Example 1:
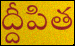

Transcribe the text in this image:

ద్దీపిత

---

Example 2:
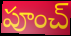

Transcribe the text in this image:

పూంచ్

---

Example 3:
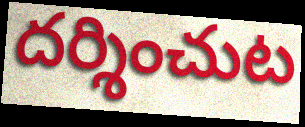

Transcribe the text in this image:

దర్శించుట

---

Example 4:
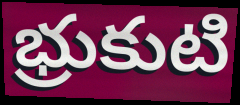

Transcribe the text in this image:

భ్రుకుటి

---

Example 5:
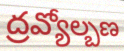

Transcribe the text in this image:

ద్రవ్యోల్బణ